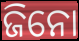
ଜିନୋ